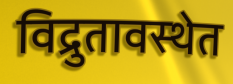
विद्रुतावस्थेत